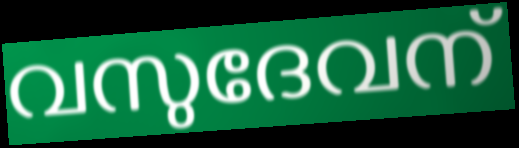
വസുദേവന്